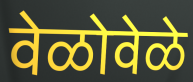
वेळोवेळे